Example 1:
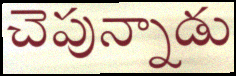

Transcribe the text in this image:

చెపున్నాడు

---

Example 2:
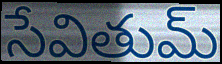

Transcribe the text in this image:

సేవితుమ్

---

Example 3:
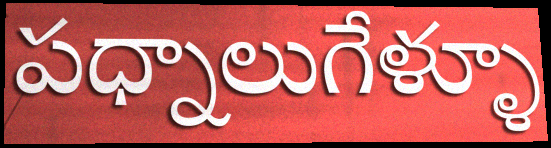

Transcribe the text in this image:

పధ్నాలుగేళ్ళూ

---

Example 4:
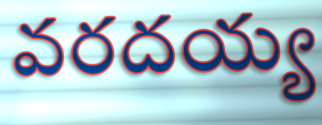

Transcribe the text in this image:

వరదయ్య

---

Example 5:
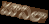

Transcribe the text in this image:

మౌనిలా